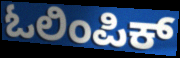
ಓಲಿಂಪಿಕ್